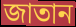
জাতান